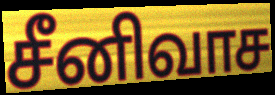
சீனிவாச